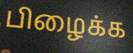
பிழைக்க